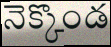
నెక్కొండ